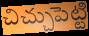
చిచ్చుపెట్టి